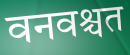
वनवश्चत